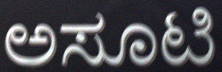
ಅಸೂಟಿ